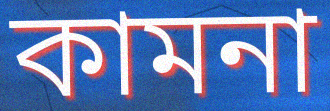
কামনা